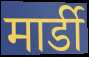
मार्डी